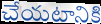
చేయటానికి